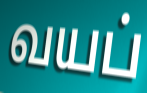
வயப்